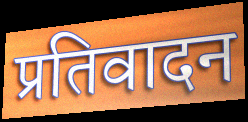
प्रतिवादन